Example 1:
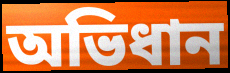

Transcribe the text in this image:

অভিধান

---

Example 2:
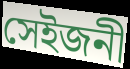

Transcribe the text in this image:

সেইজনী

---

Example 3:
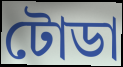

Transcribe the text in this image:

টোডা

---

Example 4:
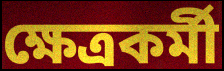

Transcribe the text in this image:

ক্ষেত্ৰকৰ্মী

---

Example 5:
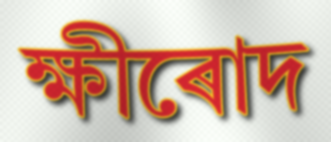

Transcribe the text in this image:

ক্ষীৰোদ